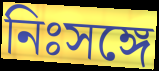
নিঃসঙ্গে